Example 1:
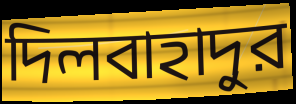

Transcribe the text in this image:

দিলবাহাদুর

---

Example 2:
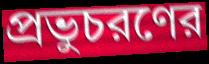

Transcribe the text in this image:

প্রভুচরণের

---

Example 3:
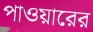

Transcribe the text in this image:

পাওয়ারের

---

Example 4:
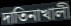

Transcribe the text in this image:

দাতিনাখালী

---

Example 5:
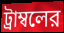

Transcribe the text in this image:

ট্রাম্বলের